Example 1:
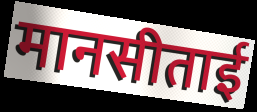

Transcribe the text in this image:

मानसीताई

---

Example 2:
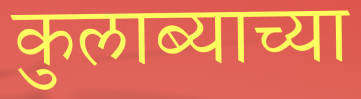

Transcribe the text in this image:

कुलाब्याच्या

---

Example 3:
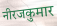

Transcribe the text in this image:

नीरजकुमार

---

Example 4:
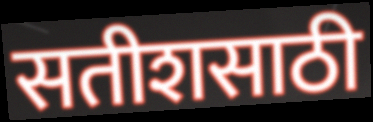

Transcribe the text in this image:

सतीशसाठी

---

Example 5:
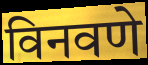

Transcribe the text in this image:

विनवणे